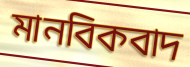
মানবিকবাদ